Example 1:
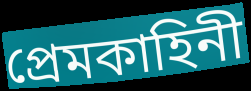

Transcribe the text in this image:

প্রেমকাহিনী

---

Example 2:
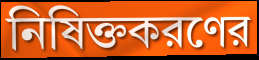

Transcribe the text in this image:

নিষিক্তকরণের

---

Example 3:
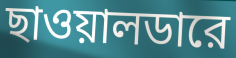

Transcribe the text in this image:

ছাওয়ালডারে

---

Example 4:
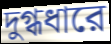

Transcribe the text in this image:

দুগ্ধধারে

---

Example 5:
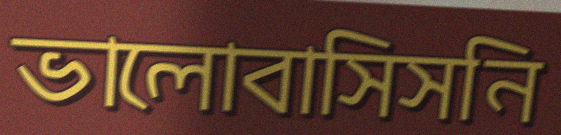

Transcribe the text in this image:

ভালোবাসিসনি